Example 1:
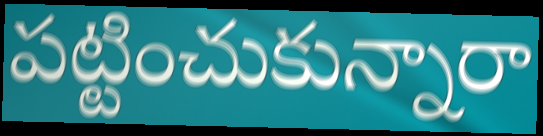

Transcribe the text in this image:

పట్టించుకున్నారా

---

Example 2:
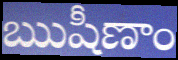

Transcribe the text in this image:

ఋషీణాం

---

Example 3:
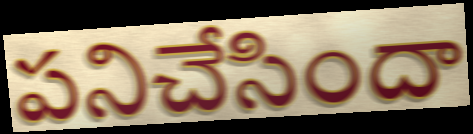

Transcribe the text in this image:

పనిచేసిందా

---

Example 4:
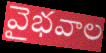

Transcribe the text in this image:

వైభవాల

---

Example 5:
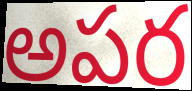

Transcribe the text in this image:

అపర